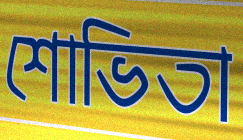
শোভিতা